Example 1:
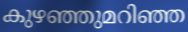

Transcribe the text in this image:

കുഴഞ്ഞുമറിഞ്ഞ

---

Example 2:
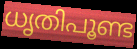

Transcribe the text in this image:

ധൃതിപൂണ്ട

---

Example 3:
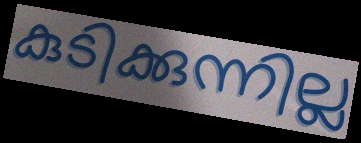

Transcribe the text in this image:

കുടിക്കുന്നില്ല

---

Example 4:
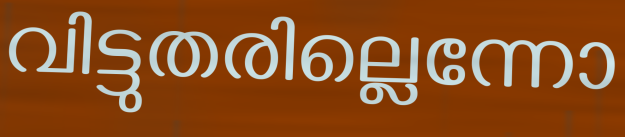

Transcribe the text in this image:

വിട്ടുതരില്ലെന്നോ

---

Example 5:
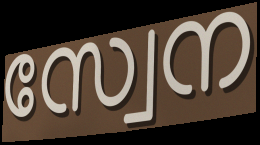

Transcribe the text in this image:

സ്വേന